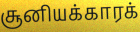
சூனியக்காரக்